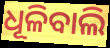
ଧୂଳିବାଲି